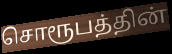
சொரூபத்தின்